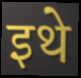
इथे